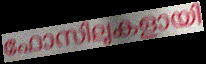
ഫോസിലുകളായി